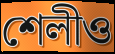
শেলীও